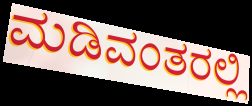
ಮಡಿವಂತರಲ್ಲಿ